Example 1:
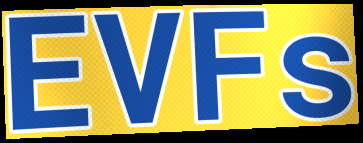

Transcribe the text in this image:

EVFs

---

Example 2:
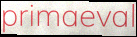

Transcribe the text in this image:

primaeval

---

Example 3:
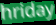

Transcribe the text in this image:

hriday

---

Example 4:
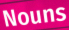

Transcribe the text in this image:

Nouns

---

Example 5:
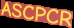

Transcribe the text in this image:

ASCPCR